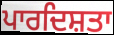
ਪਾਰਦਿਸ਼ਤਾ